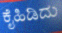
ಕೈಹಿಡಿದು